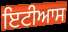
ਇਟੀਆਸ